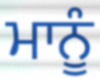
ਮਾਨੂੰ